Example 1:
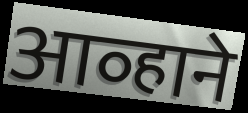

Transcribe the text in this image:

आव्हाने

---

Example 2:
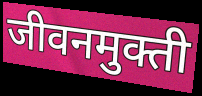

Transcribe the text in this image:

जीवनमुक्ती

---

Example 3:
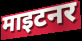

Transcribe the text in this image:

माइटनर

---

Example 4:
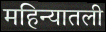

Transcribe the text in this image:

महिन्यातली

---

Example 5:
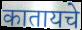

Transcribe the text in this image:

कातायचे